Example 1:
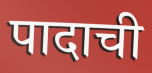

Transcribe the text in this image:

पादाची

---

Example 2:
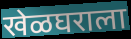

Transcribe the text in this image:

खेळघराला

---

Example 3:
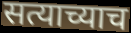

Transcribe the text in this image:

सत्याच्याच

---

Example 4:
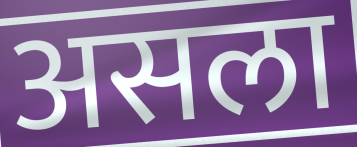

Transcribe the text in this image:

असला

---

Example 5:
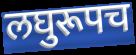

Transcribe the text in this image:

लघुरूपच